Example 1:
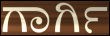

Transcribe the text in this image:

ಗಾರ್ಗಿ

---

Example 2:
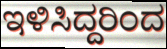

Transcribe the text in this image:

ಇಳಿಸಿದ್ದರಿಂದ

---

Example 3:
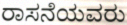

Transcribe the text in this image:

ರಾಸನೆಯವರು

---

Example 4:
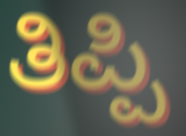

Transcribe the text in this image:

ತಿಪ್ಪಿ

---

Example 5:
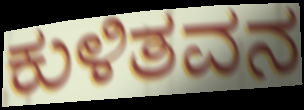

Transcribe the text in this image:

ಕುಳಿತವನ